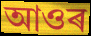
আওৰ